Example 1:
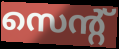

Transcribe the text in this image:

സെന്റ്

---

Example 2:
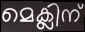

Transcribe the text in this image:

മെക്ലിന്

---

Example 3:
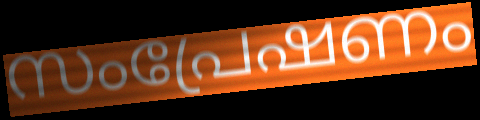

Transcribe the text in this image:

സംപ്രേഷണം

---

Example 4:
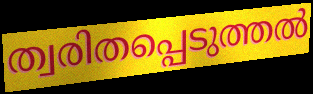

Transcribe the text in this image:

ത്വരിതപ്പെടുത്തൽ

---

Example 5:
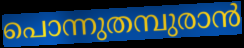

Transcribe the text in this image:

പൊന്നുതമ്പുരാൻ